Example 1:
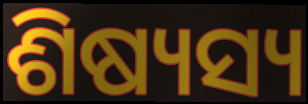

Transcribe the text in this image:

ଶିଷ୍ୟସ୍ୟ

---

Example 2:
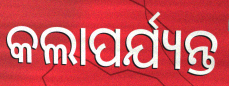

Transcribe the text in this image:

କଲାପର୍ଯ୍ୟନ୍ତ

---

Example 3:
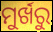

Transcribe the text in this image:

ମୁର୍ଖରୁ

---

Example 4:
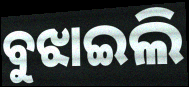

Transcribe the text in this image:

ବୁଝାଇଲି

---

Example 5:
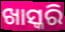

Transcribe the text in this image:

ଖାସ୍କରି